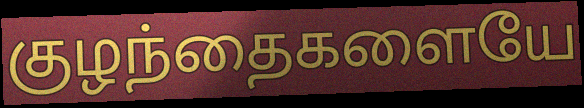
குழந்தைகளையே